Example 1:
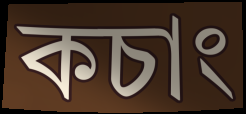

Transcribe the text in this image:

কচাং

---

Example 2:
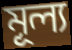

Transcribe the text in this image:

মূল্য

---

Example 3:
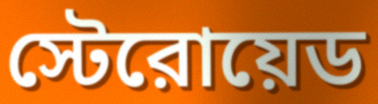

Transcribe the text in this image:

স্টেরোয়েড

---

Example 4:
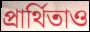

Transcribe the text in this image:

প্রার্থিতাও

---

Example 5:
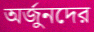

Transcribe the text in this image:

অর্জুনদের